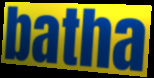
batha